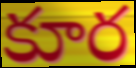
కూర